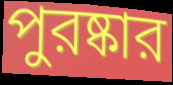
পুরষ্কার